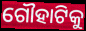
ଗୌହାଟିକୁ